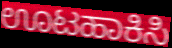
ಊಟಹಾಕಿಸಿ